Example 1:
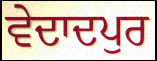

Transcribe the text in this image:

ਵੇਦਾਦਪੁਰ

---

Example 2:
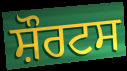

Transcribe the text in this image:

ਸ਼ੌਰਟਸ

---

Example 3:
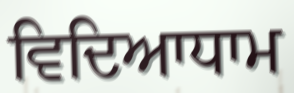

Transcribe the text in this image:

ਵਿਦਿਆਧਾਮ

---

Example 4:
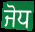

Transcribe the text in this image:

ਜੋਧ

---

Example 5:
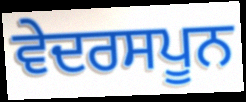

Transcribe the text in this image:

ਵੇਦਰਸਪੂਨ